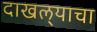
दाखल्याचा